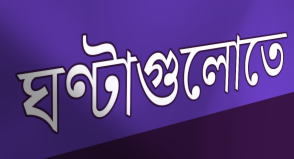
ঘণ্টাগুলোতে